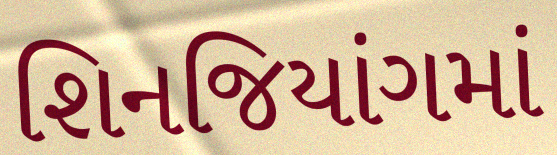
શિનજિયાંગમાં